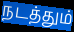
நடத்தும்